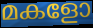
മകളോ